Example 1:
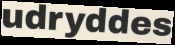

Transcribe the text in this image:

udryddes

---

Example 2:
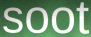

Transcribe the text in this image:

soot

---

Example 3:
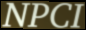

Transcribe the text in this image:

NPCI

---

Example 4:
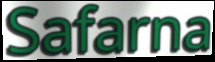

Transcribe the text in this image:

Safarna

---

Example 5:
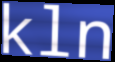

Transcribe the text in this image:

kln